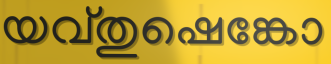
യവ്തുഷെങ്കോ